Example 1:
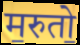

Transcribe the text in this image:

म॒रुतो॒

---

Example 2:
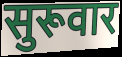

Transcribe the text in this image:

सुरूवार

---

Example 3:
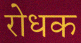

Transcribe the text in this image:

रोधक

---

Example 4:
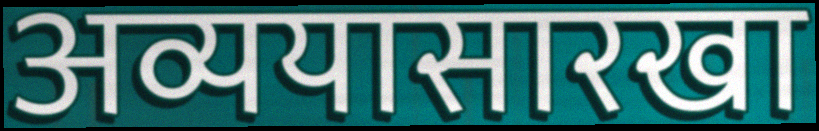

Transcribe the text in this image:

अव्ययासारखा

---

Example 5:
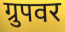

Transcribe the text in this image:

ग्रुपवर